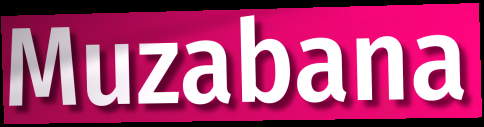
Muzabana